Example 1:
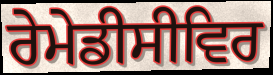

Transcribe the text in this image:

ਰੇਮੇਡੀਸੀਵਿਰ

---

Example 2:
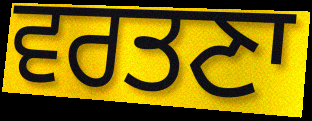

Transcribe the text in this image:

ਵਰਤਣਾ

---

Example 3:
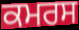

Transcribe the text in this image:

ਕਮਰਸ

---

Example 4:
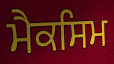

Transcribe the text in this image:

ਮੈਕਸਿਮ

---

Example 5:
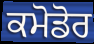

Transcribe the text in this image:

ਕਮੋਡੋਰ